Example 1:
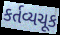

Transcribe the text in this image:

કર્તવ્યચૂક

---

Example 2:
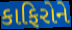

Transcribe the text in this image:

કાફિરોને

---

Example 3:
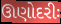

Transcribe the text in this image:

ઊણોદરીઃ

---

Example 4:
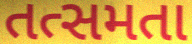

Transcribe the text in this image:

તત્સમતા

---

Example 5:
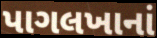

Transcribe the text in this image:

પાગલખાનાં